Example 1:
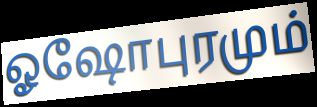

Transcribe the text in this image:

ஓஷோபுரமும்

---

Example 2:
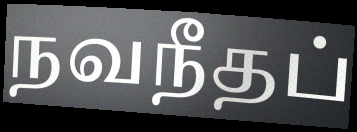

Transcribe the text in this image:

நவநீதப்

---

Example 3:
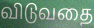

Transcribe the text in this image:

விடுவதை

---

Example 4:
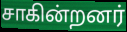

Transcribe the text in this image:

சாகின்றனர்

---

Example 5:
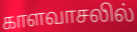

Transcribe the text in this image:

காளவாசலில்